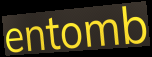
entomb